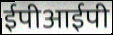
ईपीआईपी